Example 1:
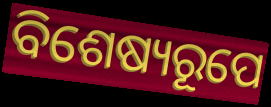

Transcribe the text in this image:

ବିଶେଷ୍ୟରୂପେ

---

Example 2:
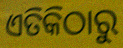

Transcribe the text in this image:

ଏତିକିଠାରୁ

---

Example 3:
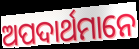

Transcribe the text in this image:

ଅପଦାର୍ଥମାନେ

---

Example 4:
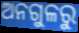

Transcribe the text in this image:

ଅନଗୁଳରୁ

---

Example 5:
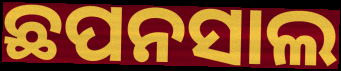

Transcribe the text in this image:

ଛପନସାଲ